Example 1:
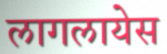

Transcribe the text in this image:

लागलायेस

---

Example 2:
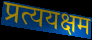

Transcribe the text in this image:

प्रत्ययक्षम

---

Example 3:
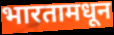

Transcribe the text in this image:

भारतामधून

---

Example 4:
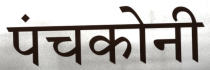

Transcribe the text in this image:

पंचकोनी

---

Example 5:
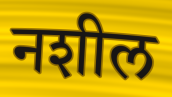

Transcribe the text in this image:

नशील